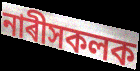
নাৰীসকলক